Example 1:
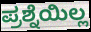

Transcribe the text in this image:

ಪ್ರಶ್ನೆಯಿಲ್ಲ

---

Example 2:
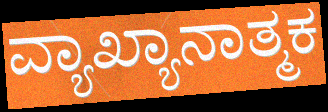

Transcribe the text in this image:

ವ್ಯಾಖ್ಯಾನಾತ್ಮಕ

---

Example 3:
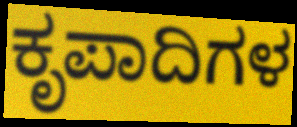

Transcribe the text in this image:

ಕೃಪಾದಿಗಳ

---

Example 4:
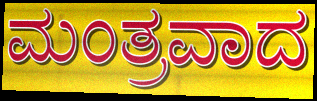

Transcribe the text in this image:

ಮಂತ್ರವಾದ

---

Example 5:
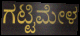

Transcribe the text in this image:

ಗಟ್ಟಿಮೇಳ